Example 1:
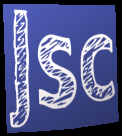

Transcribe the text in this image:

Jsc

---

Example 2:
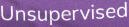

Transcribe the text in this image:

Unsupervised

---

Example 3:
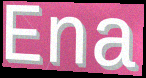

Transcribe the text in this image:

Ena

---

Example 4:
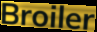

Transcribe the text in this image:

Broiler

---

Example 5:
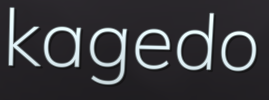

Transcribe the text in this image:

kagedo